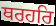
ਥਰਹਰਿ